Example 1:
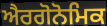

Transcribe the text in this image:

ਐਰਗੋਨੋਮਿਕ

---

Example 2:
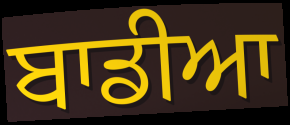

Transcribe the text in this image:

ਬਾਡੀਆ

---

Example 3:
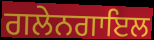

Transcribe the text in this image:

ਗਲੇਨਗਾਇਲ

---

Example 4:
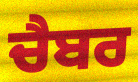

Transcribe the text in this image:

ਚੈਬਰ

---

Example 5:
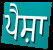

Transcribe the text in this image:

ਪੈਸ਼ਾ